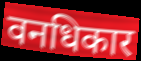
वनधिकार